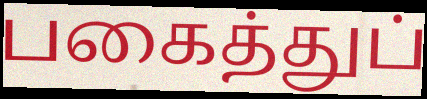
பகைத்துப்